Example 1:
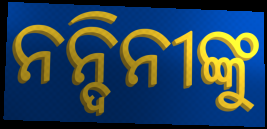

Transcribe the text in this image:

ନନ୍ଦିନୀଙ୍କୁ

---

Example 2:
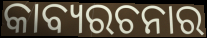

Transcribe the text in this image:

କାବ୍ୟରଚନାର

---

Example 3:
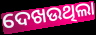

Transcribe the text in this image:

ଦେଖଉଥିଲା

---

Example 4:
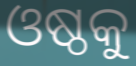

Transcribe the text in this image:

ଓଷ୍ଠକୁ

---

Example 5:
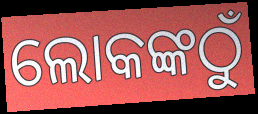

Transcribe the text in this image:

ଲୋକଙ୍କଠୁଁ